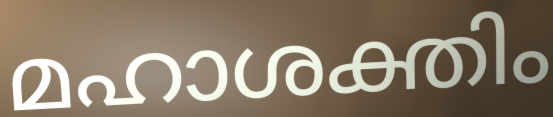
മഹാശക്തിം